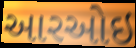
આરઓઇ